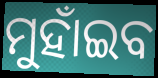
ମୁହାଁଇବ